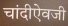
चांदीऐवजी